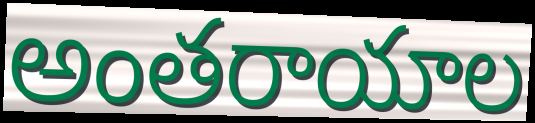
అంతరాయాల